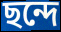
ছন্দে